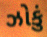
ઝોકું